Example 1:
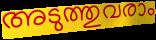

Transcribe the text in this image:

അടുത്തുവരാം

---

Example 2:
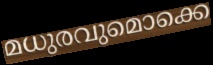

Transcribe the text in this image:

മധുരവുമൊക്കെ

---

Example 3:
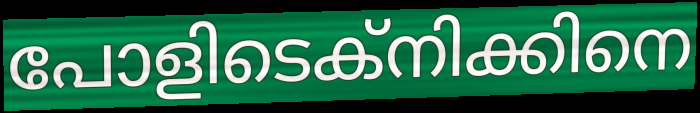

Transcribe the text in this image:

പോളിടെക്നിക്കിനെ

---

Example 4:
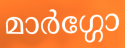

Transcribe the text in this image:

മാർഗ്ഗോ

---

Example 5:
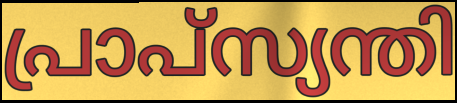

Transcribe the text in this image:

പ്രാപ്സ്യന്തി